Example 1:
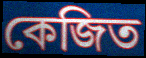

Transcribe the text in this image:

কেজিত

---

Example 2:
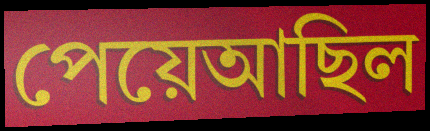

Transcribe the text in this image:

পেয়েআছিল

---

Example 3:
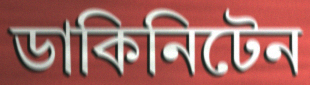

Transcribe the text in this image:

ডাকিনিটেন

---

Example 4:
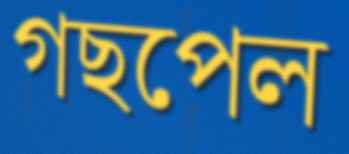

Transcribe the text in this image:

গছপেল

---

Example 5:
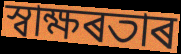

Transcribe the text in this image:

স্বাক্ষৰতাৰ